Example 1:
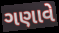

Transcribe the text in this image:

ગણાવે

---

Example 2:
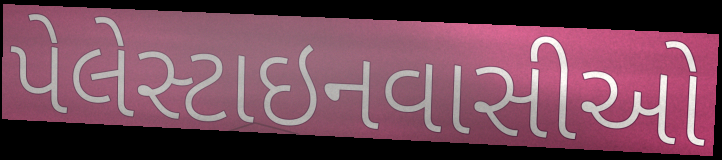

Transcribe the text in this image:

પેલેસ્ટાઇનવાસીઓ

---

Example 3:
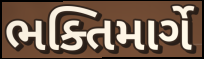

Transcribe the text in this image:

ભક્તિમાર્ગે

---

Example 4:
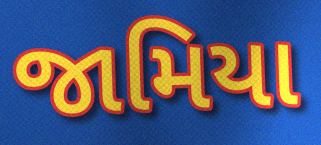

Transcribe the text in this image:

જામિયા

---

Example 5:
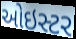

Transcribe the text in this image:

ઓઇસ્ટર